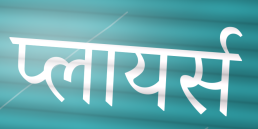
प्लायर्स